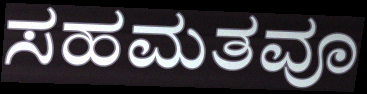
ಸಹಮತವೂ